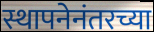
स्थापनेनंतरच्या